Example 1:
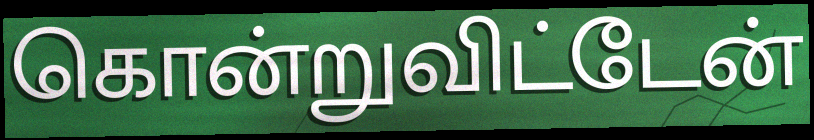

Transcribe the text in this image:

கொன்றுவிட்டேன்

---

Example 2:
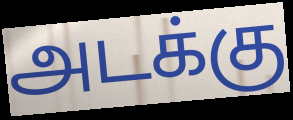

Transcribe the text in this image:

அடக்கு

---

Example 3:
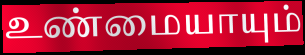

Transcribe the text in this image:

உண்மையாயும்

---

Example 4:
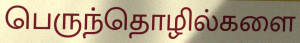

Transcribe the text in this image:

பெருந்தொழில்களை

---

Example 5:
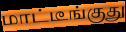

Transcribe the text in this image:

மாட்டீங்குது